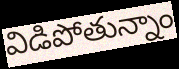
విడిపోతున్నాం